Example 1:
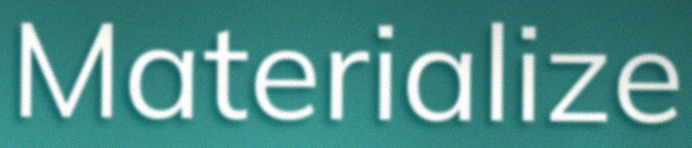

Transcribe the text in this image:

Materialize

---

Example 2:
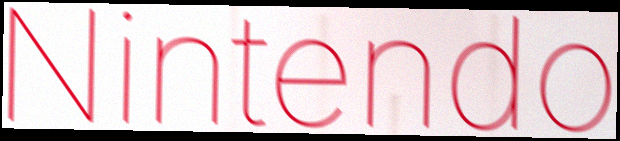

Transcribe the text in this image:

Nintendo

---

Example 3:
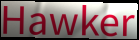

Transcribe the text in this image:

Hawker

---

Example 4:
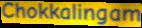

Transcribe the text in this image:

Chokkalingam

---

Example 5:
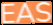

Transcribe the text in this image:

EAS